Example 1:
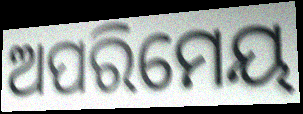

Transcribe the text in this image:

ଅପରିମେୟ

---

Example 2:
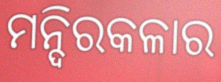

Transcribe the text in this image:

ମନ୍ଦିରକଳାର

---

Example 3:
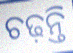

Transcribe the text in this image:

ଚଢ଼ନ୍ତି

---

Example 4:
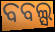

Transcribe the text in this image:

ବବଲ୍ସ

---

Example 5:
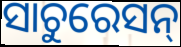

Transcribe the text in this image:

ସାଚୁରେସନ୍